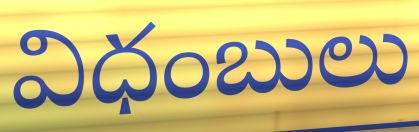
విధంబులు